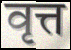
वृत्त